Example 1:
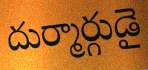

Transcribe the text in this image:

దుర్మార్గుడై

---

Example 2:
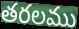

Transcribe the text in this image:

తరలము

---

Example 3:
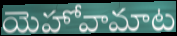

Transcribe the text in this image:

యెహోవామాట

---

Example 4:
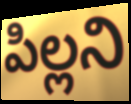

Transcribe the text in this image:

పిల్లని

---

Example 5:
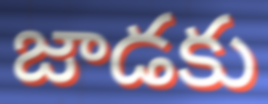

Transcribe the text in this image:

జాడకు